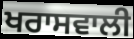
ਖਰਾਸਵਾਲੀ